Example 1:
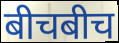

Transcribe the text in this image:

बीचबीच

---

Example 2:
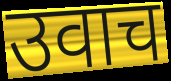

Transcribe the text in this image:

उवाच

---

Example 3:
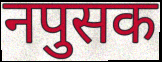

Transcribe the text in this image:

नपुसक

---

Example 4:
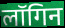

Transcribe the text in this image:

लॉगिन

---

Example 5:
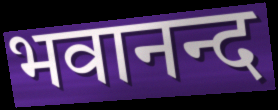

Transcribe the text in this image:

भवानन्द